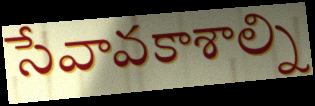
సేవావకాశాల్ని